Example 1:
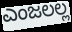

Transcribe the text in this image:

ಎಂಜಲಲ್ಲ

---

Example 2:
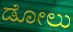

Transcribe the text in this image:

ಡೋಲು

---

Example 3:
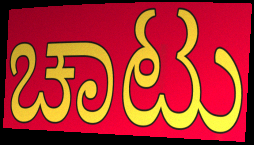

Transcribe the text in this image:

ಚಾಟು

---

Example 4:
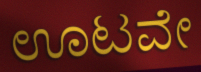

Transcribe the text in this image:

ಊಟವೇ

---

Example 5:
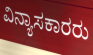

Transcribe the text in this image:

ವಿನ್ಯಾಸಕಾರರು